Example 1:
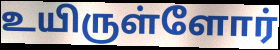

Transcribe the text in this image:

உயிருள்ளோர்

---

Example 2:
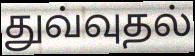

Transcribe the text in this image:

துவ்வுதல்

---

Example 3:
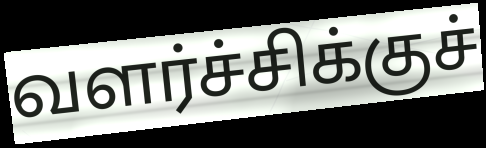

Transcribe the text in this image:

வளர்ச்சிக்குச்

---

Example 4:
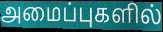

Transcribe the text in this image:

அமைப்புகளில்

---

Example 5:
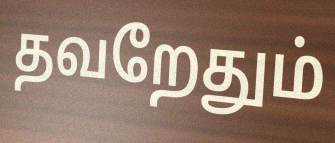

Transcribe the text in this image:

தவறேதும்